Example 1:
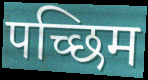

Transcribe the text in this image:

पच्छिम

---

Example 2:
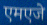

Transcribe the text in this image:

एमएजे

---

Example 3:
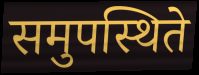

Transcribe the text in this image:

समुपस्थिते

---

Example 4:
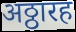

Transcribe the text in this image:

अठ्ठारह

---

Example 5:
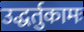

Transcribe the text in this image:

उद्धर्तुकामः